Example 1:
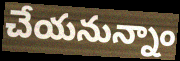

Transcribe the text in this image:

చేయనున్నాం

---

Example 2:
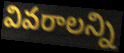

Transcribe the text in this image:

వివరాలన్ని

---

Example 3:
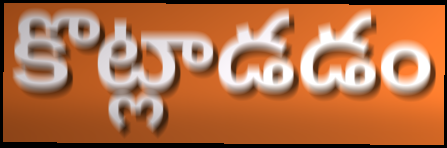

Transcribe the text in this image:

కొట్లాడడం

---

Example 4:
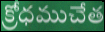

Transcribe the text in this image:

క్రోధముచేత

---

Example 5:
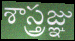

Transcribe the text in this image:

శాస్త్రజ్ఞు